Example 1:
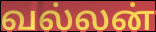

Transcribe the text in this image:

வல்லன்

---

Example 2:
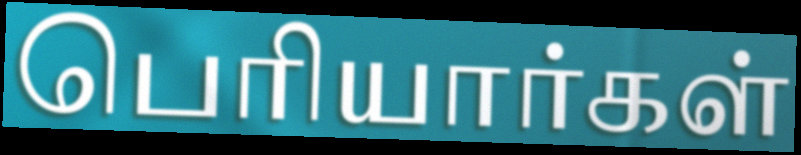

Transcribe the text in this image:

பெரியார்கள்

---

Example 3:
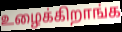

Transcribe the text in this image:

உழைக்கிறாங்க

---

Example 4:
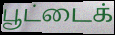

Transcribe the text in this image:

பூட்டைக்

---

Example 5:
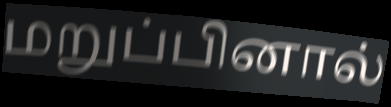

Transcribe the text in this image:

மறுப்பினால்